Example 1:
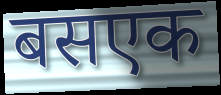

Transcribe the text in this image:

बसएक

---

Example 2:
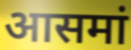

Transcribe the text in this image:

आसमां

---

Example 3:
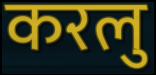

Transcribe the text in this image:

करलु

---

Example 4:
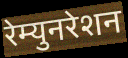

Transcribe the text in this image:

रेम्युनरेशन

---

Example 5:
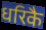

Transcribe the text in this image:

धरिकै